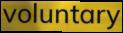
voluntary